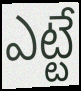
ఎట్టే